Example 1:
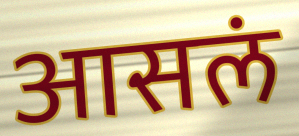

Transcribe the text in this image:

आसलं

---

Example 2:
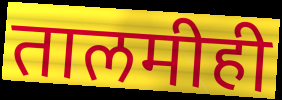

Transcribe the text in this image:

तालमीही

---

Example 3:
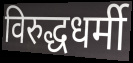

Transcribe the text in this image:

विरुद्धधर्मी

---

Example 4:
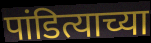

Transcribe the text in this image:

पांडित्याच्या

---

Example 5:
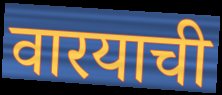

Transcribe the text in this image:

वारयाची